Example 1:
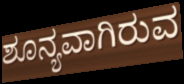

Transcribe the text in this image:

ಶೂನ್ಯವಾಗಿರುವ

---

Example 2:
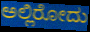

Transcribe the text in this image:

ಅಲ್ಲಿರೋದು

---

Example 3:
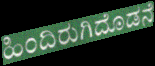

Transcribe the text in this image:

ಹಿಂದಿರುಗಿದೊಡನೆ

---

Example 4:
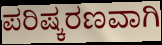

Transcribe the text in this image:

ಪರಿಷ್ಕರಣವಾಗಿ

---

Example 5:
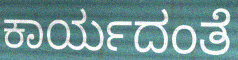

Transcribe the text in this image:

ಕಾರ್ಯದಂತೆ